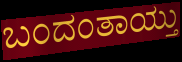
ಬಂದಂತಾಯ್ತು